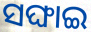
ସଙ୍ଘାଇ